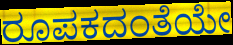
ರೂಪಕದಂತೆಯೇ